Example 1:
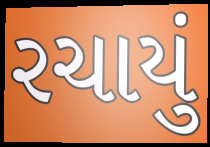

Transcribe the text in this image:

રચાયું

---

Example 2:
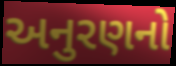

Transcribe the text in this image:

અનુરણનો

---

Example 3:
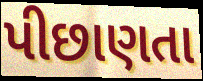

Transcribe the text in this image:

પીછાણતા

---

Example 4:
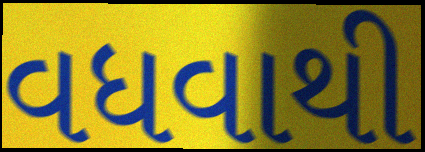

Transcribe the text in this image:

વધવાથી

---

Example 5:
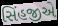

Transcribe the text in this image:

સિંહજીએ